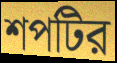
শপটির